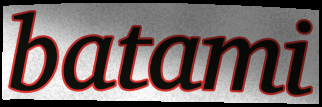
batami